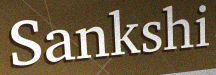
Sankshi